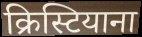
क्रिस्टियाना